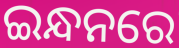
ଇନ୍ଧନରେ